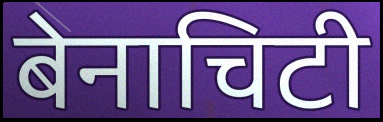
बेनाचिटी